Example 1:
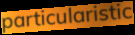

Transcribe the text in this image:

particularistic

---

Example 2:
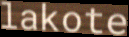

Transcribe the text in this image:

lakote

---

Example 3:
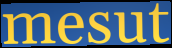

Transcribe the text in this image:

mesut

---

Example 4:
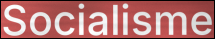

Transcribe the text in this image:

Socialisme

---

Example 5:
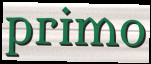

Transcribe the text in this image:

primo